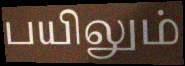
பயிலும்